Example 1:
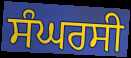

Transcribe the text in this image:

ਸੰਘਰਸੀ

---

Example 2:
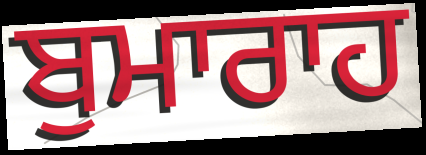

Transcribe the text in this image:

ਬੁਮਾਰਾਹ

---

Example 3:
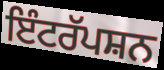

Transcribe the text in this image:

ਇੰਟਰੱਪਸ਼ਨ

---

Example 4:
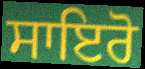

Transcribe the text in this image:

ਸਾਇਰੋ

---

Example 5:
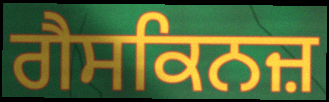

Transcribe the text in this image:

ਗੈਸਕਿਨਜ਼